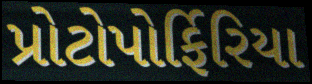
પ્રોટોપોર્ફિરિયા